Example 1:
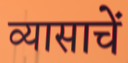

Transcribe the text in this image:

व्यासाचें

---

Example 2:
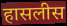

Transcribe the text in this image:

हासलीस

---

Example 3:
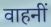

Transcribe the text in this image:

वाहनीं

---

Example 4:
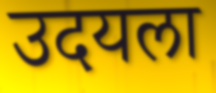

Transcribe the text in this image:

उदयला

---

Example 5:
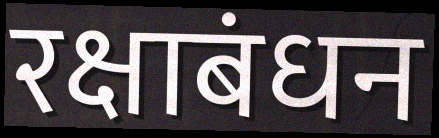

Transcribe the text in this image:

रक्षाबंधन